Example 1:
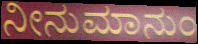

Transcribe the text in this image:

ನೀನುಮಾನುಂ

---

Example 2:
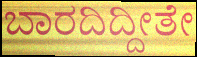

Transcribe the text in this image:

ಬಾರದಿದ್ದೀತೇ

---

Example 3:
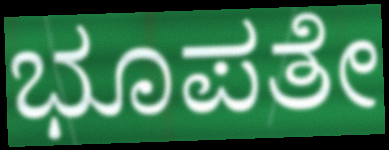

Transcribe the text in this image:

ಭೂಪತೇ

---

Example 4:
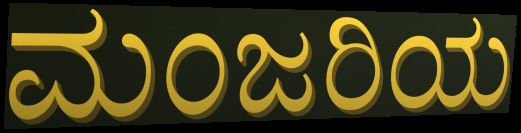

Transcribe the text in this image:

ಮಂಜರಿಯ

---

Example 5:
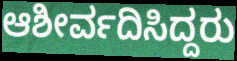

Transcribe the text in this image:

ಆಶೀರ್ವದಿಸಿದ್ದರು